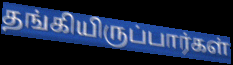
தங்கியிருப்பார்கள்